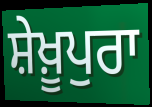
ਸ਼ੇਖ਼ੂਪੁਰਾ